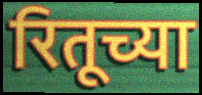
रितूच्या